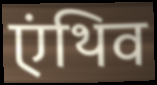
एंथिव